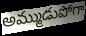
అమ్ముడుపోగా